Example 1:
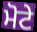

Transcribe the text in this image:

ਮੋਟੇ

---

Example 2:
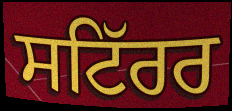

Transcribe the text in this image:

ਸਟਿੱਰਰ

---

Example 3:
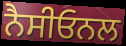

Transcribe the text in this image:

ਨੈਸੀਓਨਲ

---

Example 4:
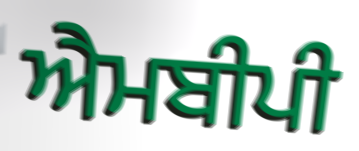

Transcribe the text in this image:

ਐਮਬੀਪੀ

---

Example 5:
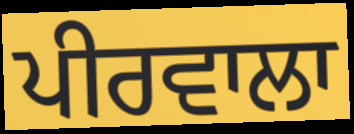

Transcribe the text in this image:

ਪੀਰਵਾਲਾ